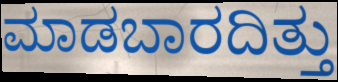
ಮಾಡಬಾರದಿತ್ತು